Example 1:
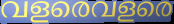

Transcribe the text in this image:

വളരെവളരെ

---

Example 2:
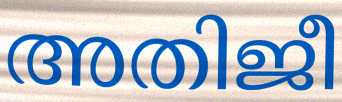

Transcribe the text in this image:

അതിജീ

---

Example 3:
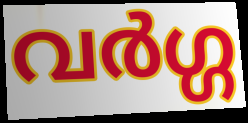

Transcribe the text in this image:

വർഗ്ഗ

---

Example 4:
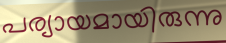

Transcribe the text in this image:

പര്യായമായിരുന്നു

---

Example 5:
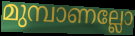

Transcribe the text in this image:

മുമ്പാണല്ലോ